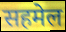
सहमेल